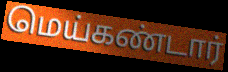
மெய்கண்டார்